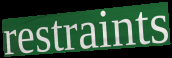
restraints